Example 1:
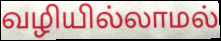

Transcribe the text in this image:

வழியில்லாமல்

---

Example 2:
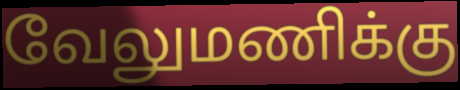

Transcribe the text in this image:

வேலுமணிக்கு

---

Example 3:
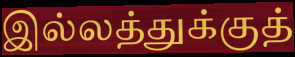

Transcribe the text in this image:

இல்லத்துக்குத்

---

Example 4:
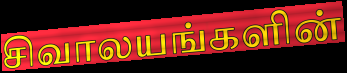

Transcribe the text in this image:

சிவாலயங்களின்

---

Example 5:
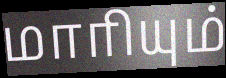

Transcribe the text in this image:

மாரியும்